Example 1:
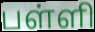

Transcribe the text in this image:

பள்ளி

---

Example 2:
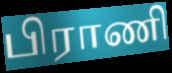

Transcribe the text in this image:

பிராணி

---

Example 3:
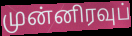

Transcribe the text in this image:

முன்னிரவுப்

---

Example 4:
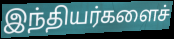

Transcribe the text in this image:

இந்தியர்களைச்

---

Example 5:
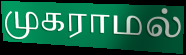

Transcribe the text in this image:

முகராமல்